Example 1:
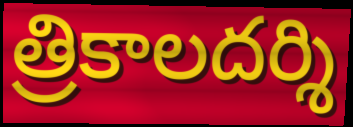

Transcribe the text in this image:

త్రికాలదర్శి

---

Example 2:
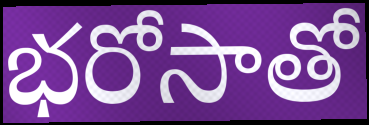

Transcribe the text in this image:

భరోసాతో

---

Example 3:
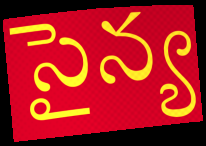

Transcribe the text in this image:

సైన్య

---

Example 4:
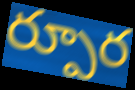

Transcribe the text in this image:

ర్పూర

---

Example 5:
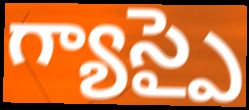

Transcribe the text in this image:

గ్యాస్పై